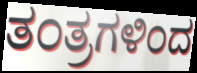
ತಂತ್ರಗಳಿಂದ